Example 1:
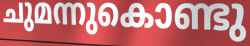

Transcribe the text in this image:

ചുമന്നുകൊണ്ടു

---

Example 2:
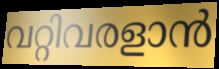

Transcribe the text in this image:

വറ്റിവരളാൻ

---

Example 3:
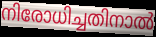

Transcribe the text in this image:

നിരോധിച്ചതിനാൽ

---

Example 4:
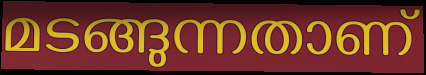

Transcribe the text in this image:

മടങ്ങുന്നതാണ്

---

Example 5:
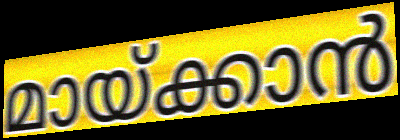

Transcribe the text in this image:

മായ്ക്കാൻ